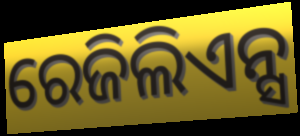
ରେଜିଲିଏନ୍ସ